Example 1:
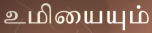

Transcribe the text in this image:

உமியையும்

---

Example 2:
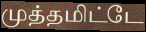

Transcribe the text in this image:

முத்தமிட்டே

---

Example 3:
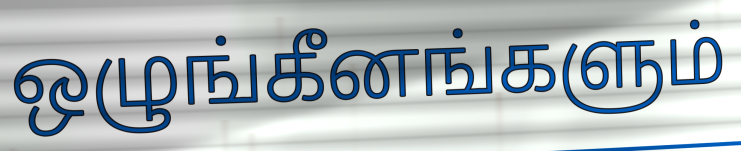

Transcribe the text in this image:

ஒழுங்கீனங்களும்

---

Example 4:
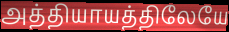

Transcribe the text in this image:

அத்தியாயத்திலேயே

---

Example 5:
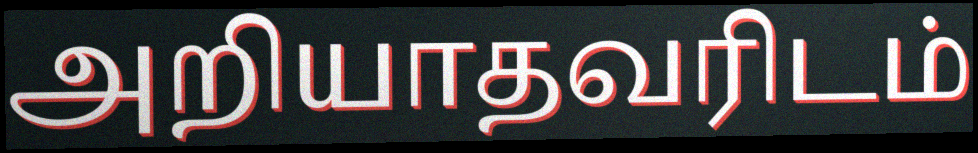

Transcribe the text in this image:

அறியாதவரிடம்